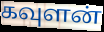
கவுளன்